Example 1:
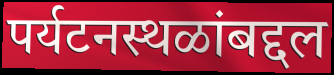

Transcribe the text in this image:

पर्यटनस्थळांबद्दल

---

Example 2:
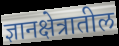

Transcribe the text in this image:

ज्ञानक्षेत्रातील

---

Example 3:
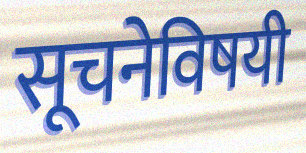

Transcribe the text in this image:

सूचनेविषयी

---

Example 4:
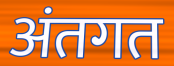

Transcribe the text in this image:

अंतगत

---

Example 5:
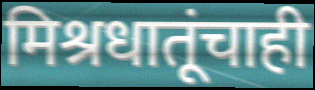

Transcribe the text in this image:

मिश्रधातूंचाही